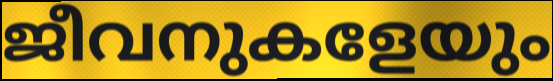
ജീവനുകളേയും